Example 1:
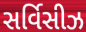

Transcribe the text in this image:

સર્વિસીઝ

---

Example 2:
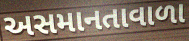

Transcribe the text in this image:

અસમાનતાવાળા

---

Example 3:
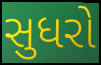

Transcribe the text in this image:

સુધરો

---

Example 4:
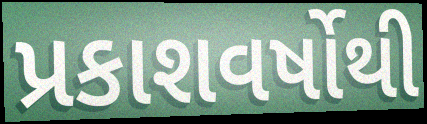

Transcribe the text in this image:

પ્રકાશવર્ષોથી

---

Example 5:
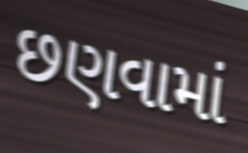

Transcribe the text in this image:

છણવામાં